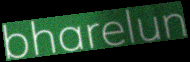
bharelun